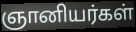
ஞானியர்கள்